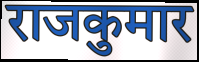
राजकुमार